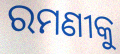
ରମଣୀକୁ